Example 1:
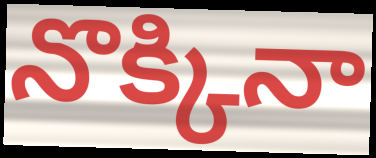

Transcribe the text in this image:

నొక్కినా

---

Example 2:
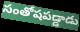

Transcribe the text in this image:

సంతోషపడ్డాడు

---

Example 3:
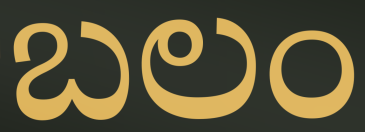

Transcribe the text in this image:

బలం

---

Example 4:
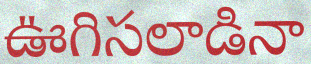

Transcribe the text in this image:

ఊగిసలాడినా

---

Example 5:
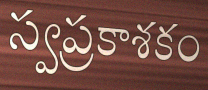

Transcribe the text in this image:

స్వప్రకాశకం